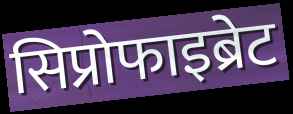
सिप्रोफाइब्रेट